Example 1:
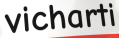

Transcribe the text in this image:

vicharti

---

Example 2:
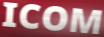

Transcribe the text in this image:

ICOM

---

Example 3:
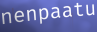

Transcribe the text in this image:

nenpaatu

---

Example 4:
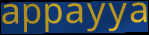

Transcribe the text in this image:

appayya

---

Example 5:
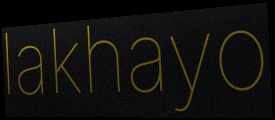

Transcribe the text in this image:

lakhayo